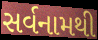
સર્વનામથી